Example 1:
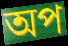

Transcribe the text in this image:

অপ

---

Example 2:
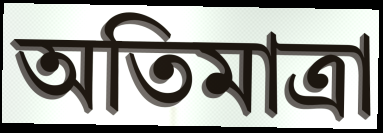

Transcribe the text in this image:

অতিমাত্ৰা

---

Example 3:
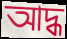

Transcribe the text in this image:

আদ্ধ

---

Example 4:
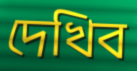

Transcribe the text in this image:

দেখিব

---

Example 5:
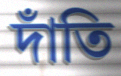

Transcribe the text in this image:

দাঁতি